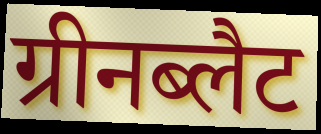
ग्रीनब्लैट